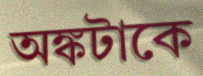
অঙ্কটাকে